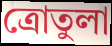
ত্রোতুলা